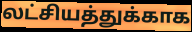
லட்சியத்துக்காக